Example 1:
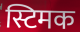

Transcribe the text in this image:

स्टिमक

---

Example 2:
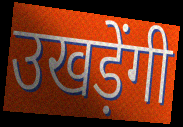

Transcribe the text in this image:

उखड़ेंगी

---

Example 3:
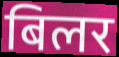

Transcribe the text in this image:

बिलर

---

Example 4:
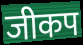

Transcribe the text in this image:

जीकप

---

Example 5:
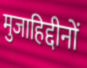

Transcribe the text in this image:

मुजाहिद्दीनों